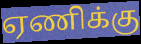
ஏணிக்கு